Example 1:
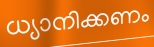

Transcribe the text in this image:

ധ്യാനിക്കണം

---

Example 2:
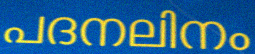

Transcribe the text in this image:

പദനലിനം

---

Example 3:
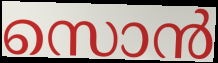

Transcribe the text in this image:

സൊൻ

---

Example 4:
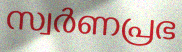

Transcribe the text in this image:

സ്വർണപ്രഭ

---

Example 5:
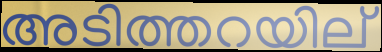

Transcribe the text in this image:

അടിത്തറയില്